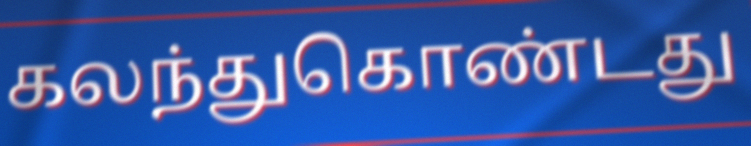
கலந்துகொண்டது